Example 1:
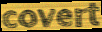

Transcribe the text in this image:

covert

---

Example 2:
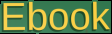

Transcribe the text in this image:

Ebook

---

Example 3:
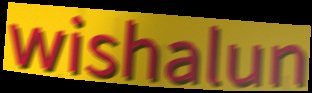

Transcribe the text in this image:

wishalun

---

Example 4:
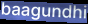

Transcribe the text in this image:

baagundhi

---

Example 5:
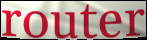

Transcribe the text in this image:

router